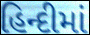
હિન્દીમાં